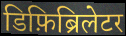
डिफ़िब्रिलेटर